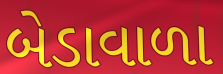
બેડાવાળા